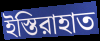
ইস্তিরাহাত